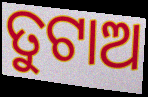
ତୁଟାଅ